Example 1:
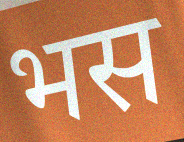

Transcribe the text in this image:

भस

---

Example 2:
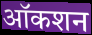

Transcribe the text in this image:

ऑकशन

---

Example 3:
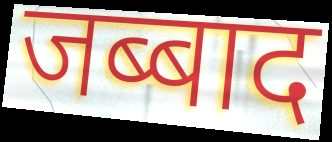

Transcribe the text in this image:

जब्बाद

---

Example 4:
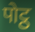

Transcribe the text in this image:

पोट्ठ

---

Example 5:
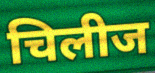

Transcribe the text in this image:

चिलीज